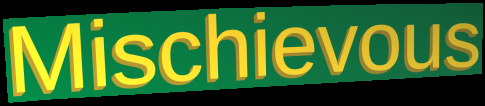
Mischievous